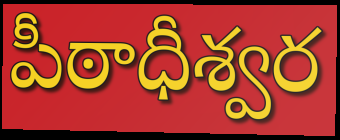
పీఠాధీశ్వర